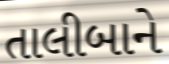
તાલીબાને